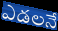
ఎడలనే